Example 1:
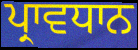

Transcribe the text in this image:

ਪ੍ਰਾਵਧਾਨ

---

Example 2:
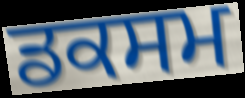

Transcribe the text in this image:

ਡਕਸਮ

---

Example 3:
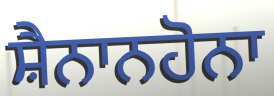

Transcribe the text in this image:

ਸ਼ੈਨਾਨਹੋਨਾ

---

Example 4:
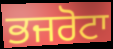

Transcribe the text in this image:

ਭਜਰੋਟਾ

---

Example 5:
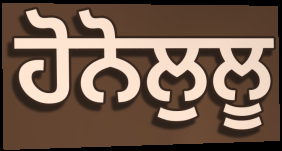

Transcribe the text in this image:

ਹੋਨੋਲੁਲੂ